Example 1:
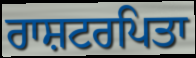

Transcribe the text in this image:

ਰਾਸ਼ਟਰਪਿਤਾ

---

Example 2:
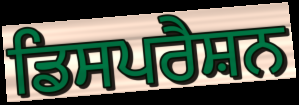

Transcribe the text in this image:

ਡਿਸਪਰੈਸ਼ਨ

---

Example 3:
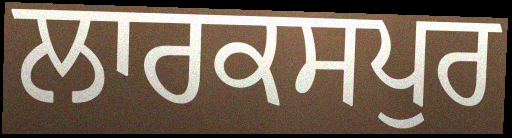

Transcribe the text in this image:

ਲਾਰਕਸਪੁਰ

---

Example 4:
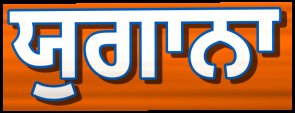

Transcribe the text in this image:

ਯੁਗਾਨਾ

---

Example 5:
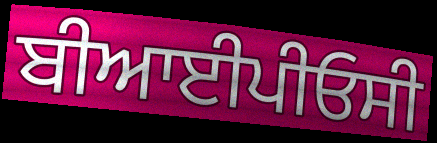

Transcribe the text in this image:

ਬੀਆਈਪੀਓਸੀ